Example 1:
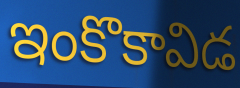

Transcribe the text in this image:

ఇంకొకావిడ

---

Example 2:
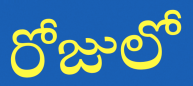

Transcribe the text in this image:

రోజులో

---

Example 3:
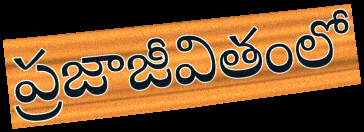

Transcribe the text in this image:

ప్రజాజీవితంలో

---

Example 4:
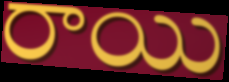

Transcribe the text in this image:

రాయి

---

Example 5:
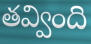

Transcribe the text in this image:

తవ్వింది